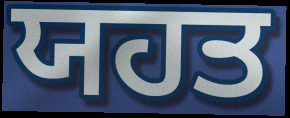
ਯਹਤ